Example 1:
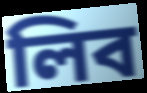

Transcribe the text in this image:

লিব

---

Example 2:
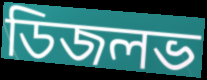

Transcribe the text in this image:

ডিজলভ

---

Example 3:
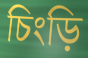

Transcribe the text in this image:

চিংড়ি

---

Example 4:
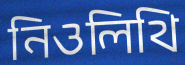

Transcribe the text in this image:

নিওলিথি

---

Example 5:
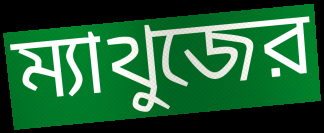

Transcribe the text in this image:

ম্যাথুজের